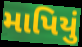
માપિયું